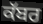
ਕੱਬਰ